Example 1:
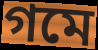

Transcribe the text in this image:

গমে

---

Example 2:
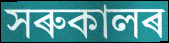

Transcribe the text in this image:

সৰুকালৰ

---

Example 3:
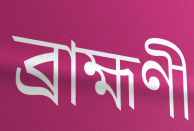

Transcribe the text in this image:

ব্ৰাহ্মণী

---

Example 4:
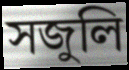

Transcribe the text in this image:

সজুলি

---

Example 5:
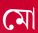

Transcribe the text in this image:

মো